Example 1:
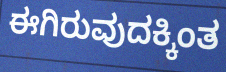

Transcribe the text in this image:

ಈಗಿರುವುದಕ್ಕಿಂತ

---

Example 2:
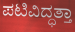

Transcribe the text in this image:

ಪಟಿವಿದ್ಧತ್ತಾ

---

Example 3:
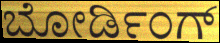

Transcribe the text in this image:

ಬೋರ್ಡಿಂಗ್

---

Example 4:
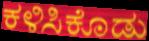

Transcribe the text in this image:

ಕಳಿಸಿಕೊಡು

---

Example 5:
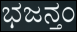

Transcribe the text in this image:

ಭಜನ್ತಂ